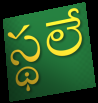
స్థలే